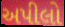
અપીલો